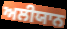
ਅਲੀਯਾਨ